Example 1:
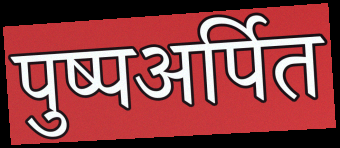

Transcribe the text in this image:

पुष्पअर्पित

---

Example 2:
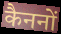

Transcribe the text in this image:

कैननों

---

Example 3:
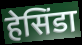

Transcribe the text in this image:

हेसिंडा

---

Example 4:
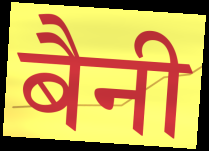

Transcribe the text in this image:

बैनी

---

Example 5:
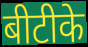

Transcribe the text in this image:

बीटीके